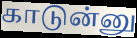
காடுன்னு